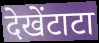
देखेंटाटा